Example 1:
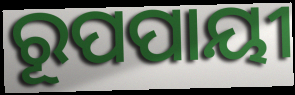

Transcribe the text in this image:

ରୂପପାୟୀ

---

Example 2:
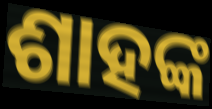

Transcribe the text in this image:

ଶାହଙ୍କ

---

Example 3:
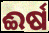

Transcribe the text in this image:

ଈର୍ଷ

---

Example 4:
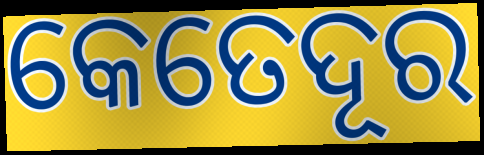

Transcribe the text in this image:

କେତେଦୂର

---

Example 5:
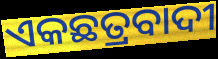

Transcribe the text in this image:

ଏକଛତ୍ରବାଦୀ